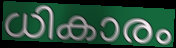
ധികാരം